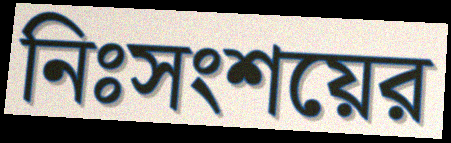
নিঃসংশয়ের